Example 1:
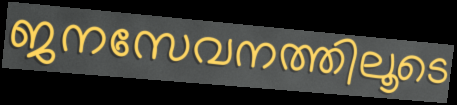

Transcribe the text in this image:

ജനസേവനത്തിലൂടെ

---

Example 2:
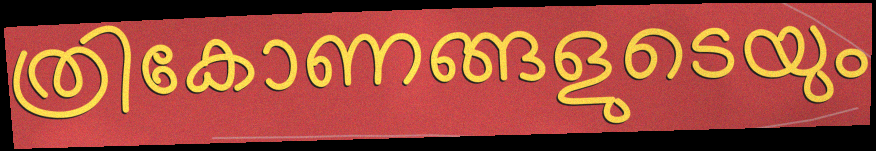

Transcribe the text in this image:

ത്രികോണങ്ങളുടെയും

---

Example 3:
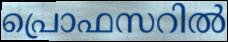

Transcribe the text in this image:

പ്രൊഫസറിൽ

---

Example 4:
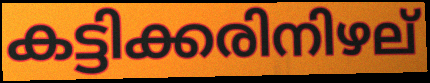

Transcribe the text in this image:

കട്ടിക്കരിനിഴല്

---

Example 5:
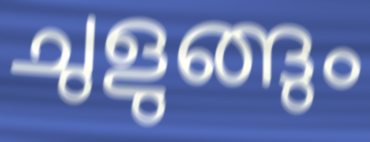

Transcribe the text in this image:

ചുളുങ്ങും